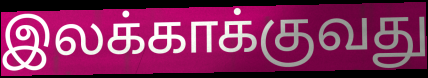
இலக்காக்குவது